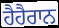
ਹੈਹੈਰਾਨ